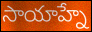
సాయాహ్నే